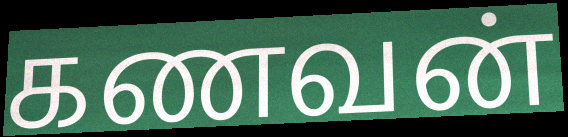
கணவன்